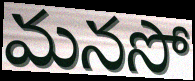
మనసో